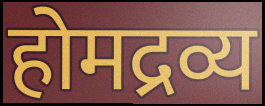
होमद्रव्य